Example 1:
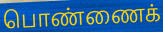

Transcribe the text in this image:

பொண்ணைக்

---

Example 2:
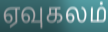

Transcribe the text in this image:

ஏவுகலம்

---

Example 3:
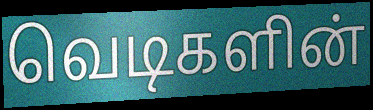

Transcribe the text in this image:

வெடிகளின்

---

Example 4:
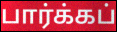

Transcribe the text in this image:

பார்க்கப்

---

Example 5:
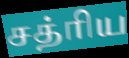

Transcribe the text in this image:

சத்ரிய